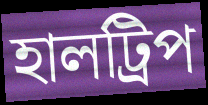
হালট্রিপ